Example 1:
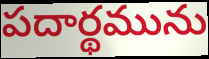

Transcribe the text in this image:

పదార్థమును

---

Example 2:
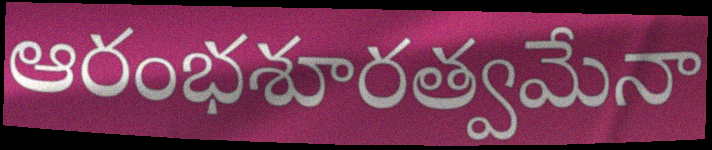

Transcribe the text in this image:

ఆరంభశూరత్వమేనా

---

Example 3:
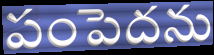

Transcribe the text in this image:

పంపెదను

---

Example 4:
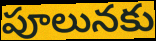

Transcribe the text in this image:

పూలునకు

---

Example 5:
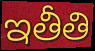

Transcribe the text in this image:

ఇతీతి